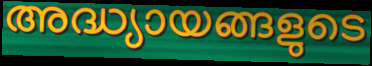
അദ്ധ്യായങ്ങളുടെ